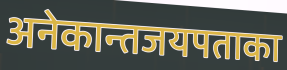
अनेकान्तजयपताका